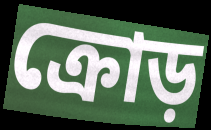
ক্রোড়